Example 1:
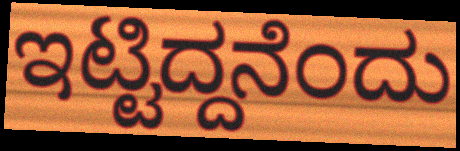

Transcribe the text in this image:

ಇಟ್ಟಿದ್ದನೆಂದು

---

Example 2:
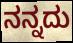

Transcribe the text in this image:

ನನ್ನದು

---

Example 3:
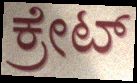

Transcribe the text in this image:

ಕ್ರೇಟ್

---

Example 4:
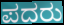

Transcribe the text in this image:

ಪದರು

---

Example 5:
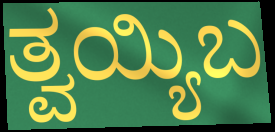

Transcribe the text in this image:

ತ್ವಯ್ಯಿಬ